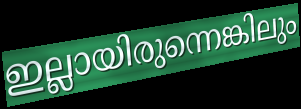
ഇല്ലായിരുന്നെങ്കിലും